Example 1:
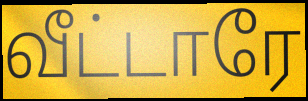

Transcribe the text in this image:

வீட்டாரே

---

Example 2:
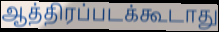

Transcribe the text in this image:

ஆத்திரப்படக்கூடாது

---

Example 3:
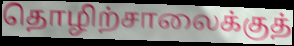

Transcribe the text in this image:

தொழிற்சாலைக்குத்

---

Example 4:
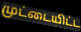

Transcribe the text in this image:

முட்டையிட்ட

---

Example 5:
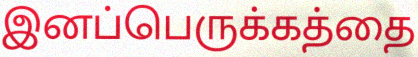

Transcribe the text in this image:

இனப்பெருக்கத்தை